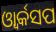
ଓ୍ୱାର୍କସପ